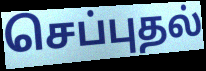
செப்புதல்